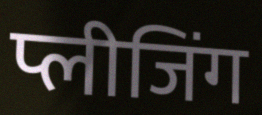
प्लीजिंग